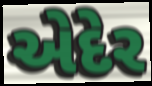
એદેર